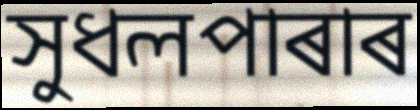
সুধলপাৰাৰ